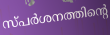
സ്പർശനത്തിന്റെ